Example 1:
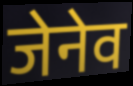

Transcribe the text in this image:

जेनेव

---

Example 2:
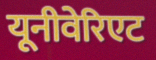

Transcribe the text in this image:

यूनीवेरिएट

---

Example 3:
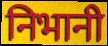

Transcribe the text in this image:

निभानी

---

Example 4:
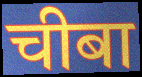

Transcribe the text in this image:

चीबा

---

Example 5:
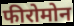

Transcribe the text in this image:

फीरोमोन